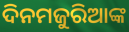
ଦିନମଜୁରିଆଙ୍କ